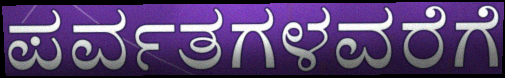
ಪರ್ವತಗಳವರೆಗೆ